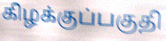
கிழக்குப்பகுதி